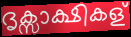
ദൃക്സാക്ഷികള്